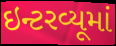
ઇન્ટરવ્યૂમાં